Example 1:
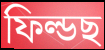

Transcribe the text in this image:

ফিল্ডছ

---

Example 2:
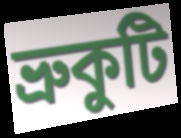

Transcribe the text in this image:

ভ্ৰুকুটি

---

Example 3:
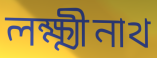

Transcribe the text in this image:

লক্ষ্মীনাথ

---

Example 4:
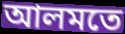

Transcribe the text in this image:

আলমতে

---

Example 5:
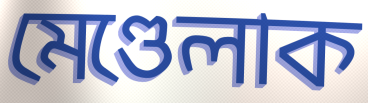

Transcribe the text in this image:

মেণ্ডেলাক